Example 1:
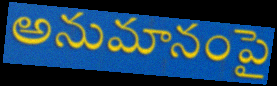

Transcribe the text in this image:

అనుమానంపై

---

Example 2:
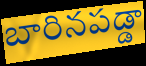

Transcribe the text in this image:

బారినపడ్డా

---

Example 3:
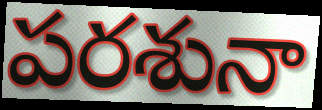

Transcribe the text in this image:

పరశునా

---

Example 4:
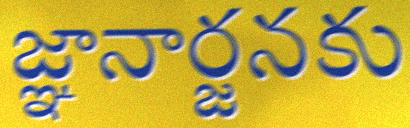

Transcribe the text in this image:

జ్ఞానార్జనకు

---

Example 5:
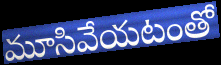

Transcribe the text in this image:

మూసివేయటంతో